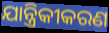
ଯାନ୍ତ୍ରିକୀକରଣ